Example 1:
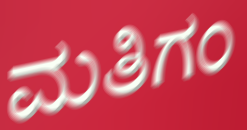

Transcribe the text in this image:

ಮತಿಗಂ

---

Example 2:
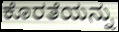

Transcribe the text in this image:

ಕೊರತೆಯನ್ನು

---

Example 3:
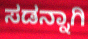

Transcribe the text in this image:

ಸಡನ್ನಾಗಿ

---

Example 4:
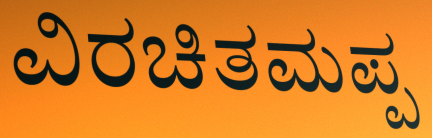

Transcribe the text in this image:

ವಿರಚಿತಮಪ್ಪ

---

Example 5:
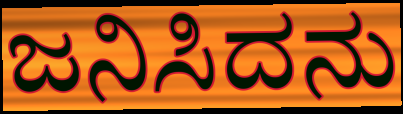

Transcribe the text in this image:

ಜನಿಸಿದನು